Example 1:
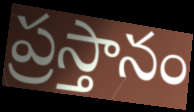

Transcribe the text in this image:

ప్రస్తానం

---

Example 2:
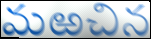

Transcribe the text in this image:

మఱచిన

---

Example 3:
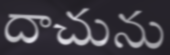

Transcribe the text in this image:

దాచును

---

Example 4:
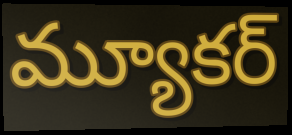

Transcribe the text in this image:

మ్యూకర్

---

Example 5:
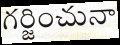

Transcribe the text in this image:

గర్జించునా